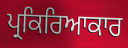
ਪ੍ਰਕਿਰਿਆਕਾਰ